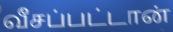
வீசப்பட்டான்